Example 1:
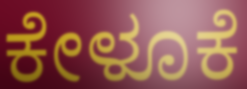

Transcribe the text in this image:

ಕೇಳೂಕೆ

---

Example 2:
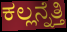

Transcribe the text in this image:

ಕಲ್ಲನ್ನೆತ್ತಿ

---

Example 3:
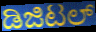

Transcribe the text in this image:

ಡಿಜಿಟಲ್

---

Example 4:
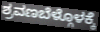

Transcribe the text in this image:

ಶ್ರವಣಬೆಳ್ಗೊಳಕ್ಕೆ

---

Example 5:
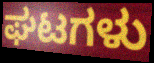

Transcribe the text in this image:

ಘಟಗಳು